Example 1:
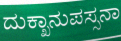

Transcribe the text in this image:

ದುಕ್ಖಾನುಪಸ್ಸನಾ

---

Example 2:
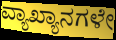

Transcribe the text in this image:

ವ್ಯಾಖ್ಯಾನಗಳೇ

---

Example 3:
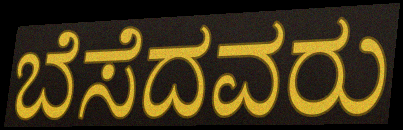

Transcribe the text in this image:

ಬೆಸೆದವರು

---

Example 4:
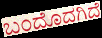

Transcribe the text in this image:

ಬಂದೊದಗಿದೆ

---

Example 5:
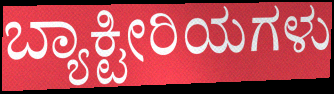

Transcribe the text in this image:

ಬ್ಯಾಕ್ಟೀರಿಯಗಳು